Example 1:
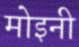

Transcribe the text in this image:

मोइनी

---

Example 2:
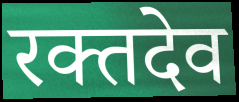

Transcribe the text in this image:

रक्तदेव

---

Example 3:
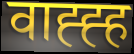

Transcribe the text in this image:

वाह्ह्ह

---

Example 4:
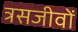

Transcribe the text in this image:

त्रसजीवों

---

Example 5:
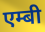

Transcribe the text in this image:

एम्बी